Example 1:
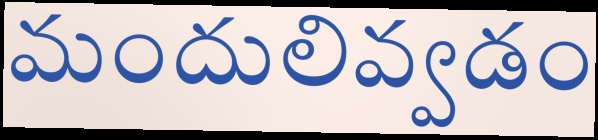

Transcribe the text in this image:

మందులివ్వడం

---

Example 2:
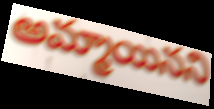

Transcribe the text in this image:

అమ్మాయినని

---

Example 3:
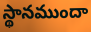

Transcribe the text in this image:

స్థానముందా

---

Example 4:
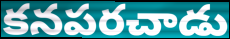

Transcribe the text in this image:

కనపరచాడు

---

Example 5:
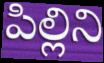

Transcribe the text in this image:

పిల్లిని